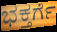
ಭಕ್ತರ್ಗೆ